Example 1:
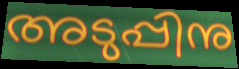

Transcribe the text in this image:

അടുപ്പിനു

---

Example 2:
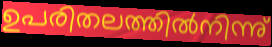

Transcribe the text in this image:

ഉപരിതലത്തിൽനിന്നു്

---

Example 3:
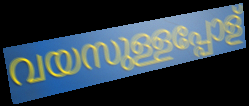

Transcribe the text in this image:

വയസുള്ളപ്പോള്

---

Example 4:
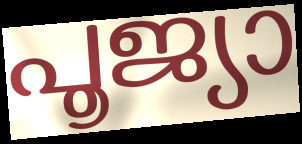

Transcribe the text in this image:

പൂജ്യാ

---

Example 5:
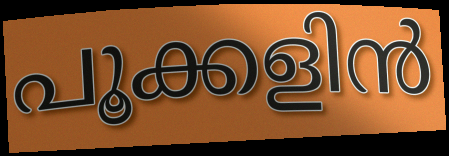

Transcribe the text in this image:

പൂക്കളിൻ